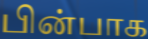
பின்பாக